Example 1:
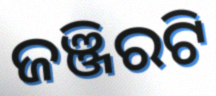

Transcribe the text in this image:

ଜଞ୍ଜିରଟି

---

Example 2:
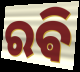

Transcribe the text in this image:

ରଵି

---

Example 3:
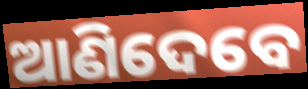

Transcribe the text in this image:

ଆଣିଦେବେ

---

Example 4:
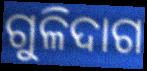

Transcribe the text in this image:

ଗୁଳିଦାଗ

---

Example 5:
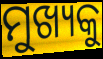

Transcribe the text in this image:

ମୁଖ୍ୟକୁ